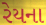
રેયના